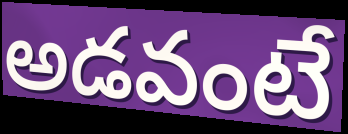
అడవంటే